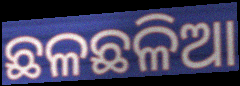
ଛଳଛଳିଆ